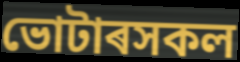
ভোটাৰসকল